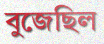
বুজেছিল